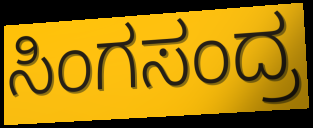
ಸಿಂಗಸಂದ್ರ